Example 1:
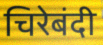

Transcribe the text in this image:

चिरेबंदी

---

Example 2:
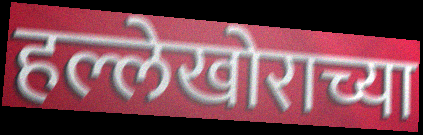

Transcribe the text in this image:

हल्लेखोराच्या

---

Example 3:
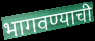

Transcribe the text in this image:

भागवण्याची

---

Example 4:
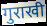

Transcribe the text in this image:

गुराखी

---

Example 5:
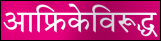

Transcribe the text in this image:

आफ्रिकेविरूद्ध